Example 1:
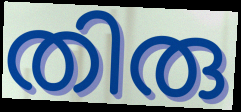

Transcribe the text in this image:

തിരു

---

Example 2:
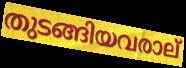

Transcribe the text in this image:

തുടങ്ങിയവരാല്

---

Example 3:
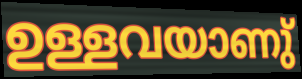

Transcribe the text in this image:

ഉള്ളവയാണു്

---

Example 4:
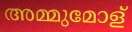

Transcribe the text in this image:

അമ്മുമോള്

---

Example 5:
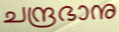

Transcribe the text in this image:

ചന്ദ്രഭാനു